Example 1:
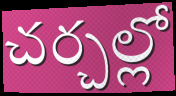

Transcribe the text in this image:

చర్చల్లో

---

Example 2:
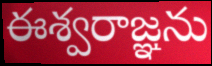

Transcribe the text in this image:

ఈశ్వరాజ్ఞను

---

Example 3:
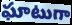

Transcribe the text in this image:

ఘాటుగా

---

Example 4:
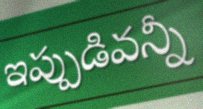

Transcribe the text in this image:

ఇప్పుడివన్నీ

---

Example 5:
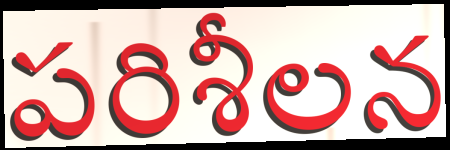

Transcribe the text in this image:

పరిశీలన